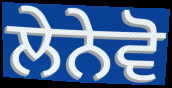
ਲੇਨੇਵੋ